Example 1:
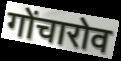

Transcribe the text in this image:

गोंचारोव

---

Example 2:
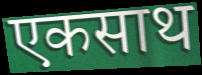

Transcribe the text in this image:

एकसाथ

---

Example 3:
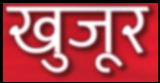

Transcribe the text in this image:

खुजूर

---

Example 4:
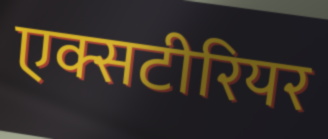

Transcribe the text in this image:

एक्सटीरियर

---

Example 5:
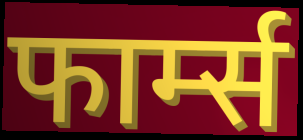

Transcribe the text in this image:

फार्म्स